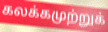
கலக்கமுற்றுக்